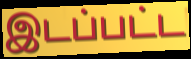
இடப்பட்ட